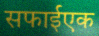
सफाईएक